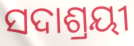
ସଦାଶ୍ରୟୀ